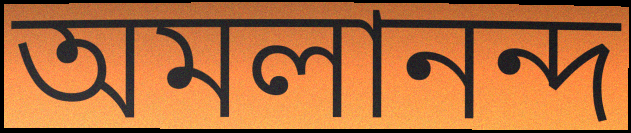
অমলানন্দ